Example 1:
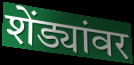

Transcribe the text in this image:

शेंड्यांवर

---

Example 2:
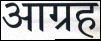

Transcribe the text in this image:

आग्रह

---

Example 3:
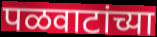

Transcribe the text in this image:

पळवाटांच्या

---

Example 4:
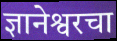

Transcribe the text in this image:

ज्ञानेश्वरचा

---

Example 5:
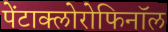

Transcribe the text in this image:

पेंटाक्लोरोफिनॉल